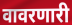
वावरणारी